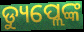
ଡ୍ୟୁପ୍ଲେଙ୍କ